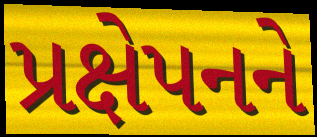
પ્રક્ષેપનને